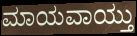
ಮಾಯವಾಯ್ತು